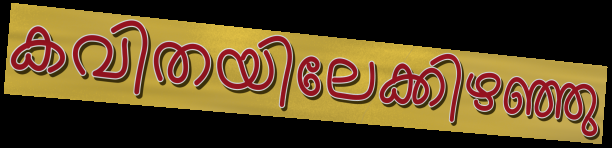
കവിതയിലേക്കിഴഞ്ഞു